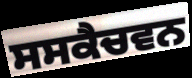
ਸਸਕੈਚਵਨ